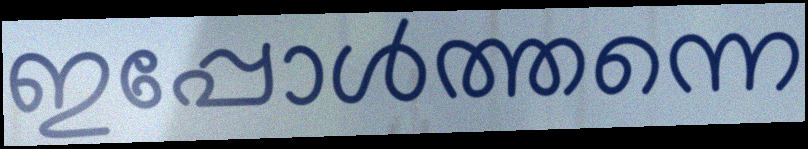
ഇപ്പോൾത്തന്നെ